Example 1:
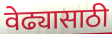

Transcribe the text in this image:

वेढ्यासाठी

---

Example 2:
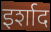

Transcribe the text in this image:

इर्शाद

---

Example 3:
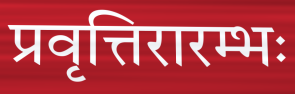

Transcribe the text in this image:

प्रवृत्तिरारम्भः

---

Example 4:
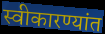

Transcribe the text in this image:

स्वीकारण्यांत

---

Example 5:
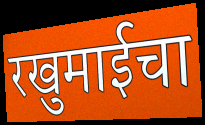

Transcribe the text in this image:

रखुमाईचा